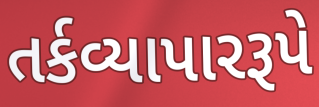
તર્કવ્યાપારરૂપે